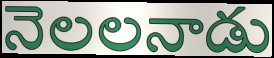
నెలలనాడు